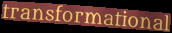
transformational